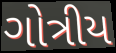
ગોત્રીય